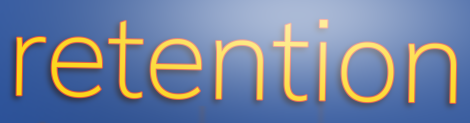
retention